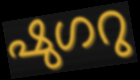
ഷുഗറു